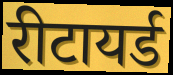
रीटायर्ड